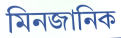
মিনজানিক